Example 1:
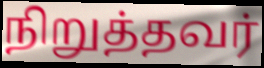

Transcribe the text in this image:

நிறுத்தவர்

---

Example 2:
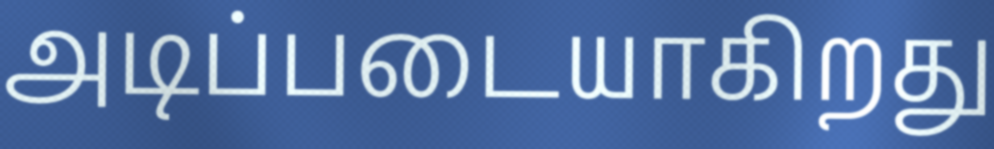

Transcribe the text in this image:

அடிப்படையாகிறது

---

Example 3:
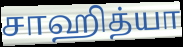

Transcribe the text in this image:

சாஹித்யா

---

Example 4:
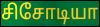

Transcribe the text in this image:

சிசோடியா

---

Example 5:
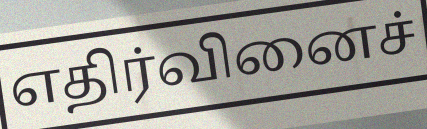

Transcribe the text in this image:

எதிர்வினைச்